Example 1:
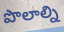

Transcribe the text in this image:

పొలాల్ని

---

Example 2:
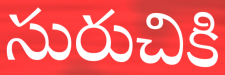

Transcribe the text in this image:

సురుచికి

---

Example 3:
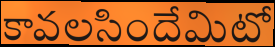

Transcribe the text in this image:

కావలసిందేమిటో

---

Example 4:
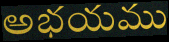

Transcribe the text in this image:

అభయము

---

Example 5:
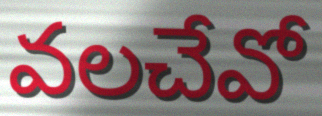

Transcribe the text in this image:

వలచేవో